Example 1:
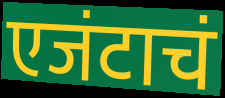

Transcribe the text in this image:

एजंटाचं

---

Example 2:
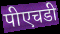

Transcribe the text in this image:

पीएचडी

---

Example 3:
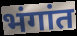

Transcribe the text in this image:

भंगांत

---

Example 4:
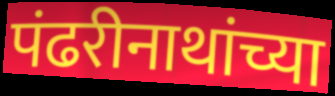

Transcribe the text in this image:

पंढरीनाथांच्या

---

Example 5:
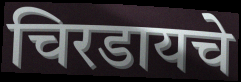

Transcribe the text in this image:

चिरडायचे